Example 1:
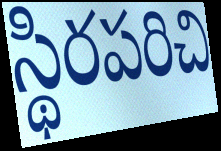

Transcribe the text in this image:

స్థిరపరిచి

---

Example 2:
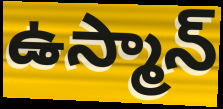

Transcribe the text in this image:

ఉస్మాన్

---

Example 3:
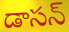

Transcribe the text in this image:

డాసన్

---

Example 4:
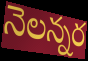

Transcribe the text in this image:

నెలన్నర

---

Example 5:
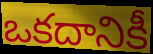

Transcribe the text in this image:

ఒకదానికీ